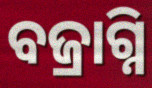
ବଜ୍ରାଗ୍ନି